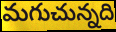
మగుచున్నది